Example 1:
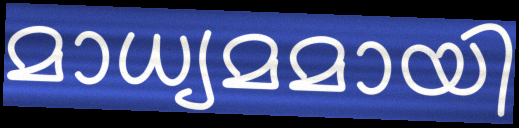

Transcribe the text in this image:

മാധ്യമമായി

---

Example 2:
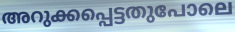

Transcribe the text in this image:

അറുക്കപ്പെട്ടതുപോലെ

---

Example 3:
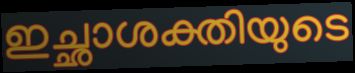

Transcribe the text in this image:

ഇച്ഛാശക്തിയുടെ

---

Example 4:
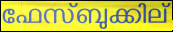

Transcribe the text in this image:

ഫേസ്ബുക്കില്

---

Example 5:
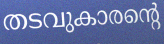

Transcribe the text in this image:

തടവുകാരന്റെ